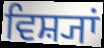
ਵਿਸ਼੍ਯਾਂ